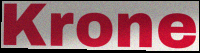
Krone